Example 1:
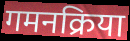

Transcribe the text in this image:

गमनक्रिया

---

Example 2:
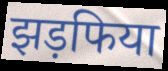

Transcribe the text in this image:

झड़फिया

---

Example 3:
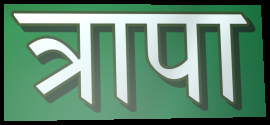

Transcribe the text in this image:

त्रापा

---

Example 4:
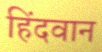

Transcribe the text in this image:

हिंदवान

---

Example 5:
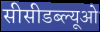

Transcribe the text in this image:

सीसीडब्ल्यूओ